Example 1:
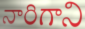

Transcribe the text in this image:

నారిగాని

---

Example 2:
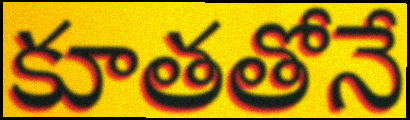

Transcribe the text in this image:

కూతతోనే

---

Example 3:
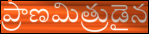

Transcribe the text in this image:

ప్రాణమిత్రుడైన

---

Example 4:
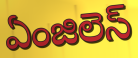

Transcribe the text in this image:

ఏంజిలెస్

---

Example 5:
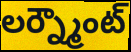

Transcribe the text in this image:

లర్న్మౌంట్